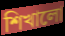
শিখালো